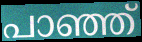
പാഞ്ഞ്